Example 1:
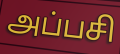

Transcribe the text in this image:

அப்பசி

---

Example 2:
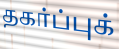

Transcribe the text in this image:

தகர்ப்புக்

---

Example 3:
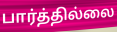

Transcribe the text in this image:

பார்த்தில்லை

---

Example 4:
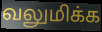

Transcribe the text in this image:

வலுமிக்க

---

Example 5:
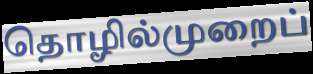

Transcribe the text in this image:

தொழில்முறைப்